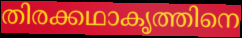
തിരക്കഥാകൃത്തിനെ